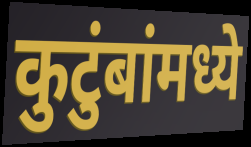
कुटुंबांमध्ये